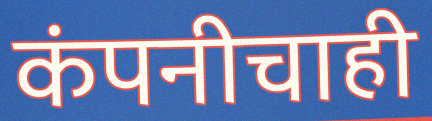
कंपनीचाही